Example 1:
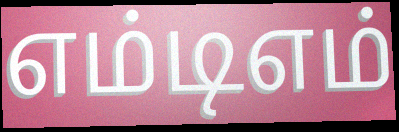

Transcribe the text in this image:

எம்டிஎம்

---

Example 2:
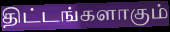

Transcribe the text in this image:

திட்டங்களாகும்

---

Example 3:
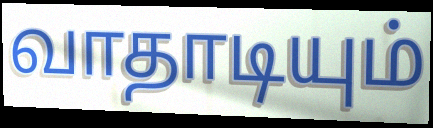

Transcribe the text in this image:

வாதாடியும்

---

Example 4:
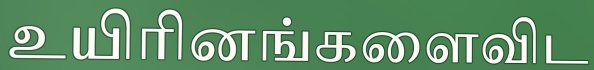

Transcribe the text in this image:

உயிரினங்களைவிட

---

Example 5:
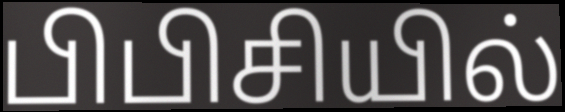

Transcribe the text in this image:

பிபிசியில்